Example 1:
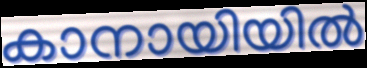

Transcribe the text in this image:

കാനായിയിൽ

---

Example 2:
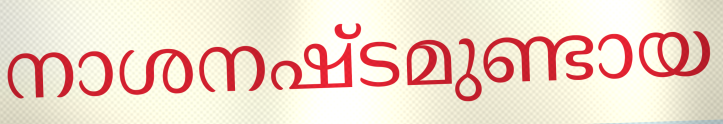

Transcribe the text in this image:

നാശനഷ്ടമുണ്ടായ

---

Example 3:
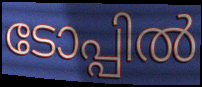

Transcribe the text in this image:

ടോപ്പിൽ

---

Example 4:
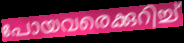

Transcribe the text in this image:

പോയവരെക്കുറിച്ച്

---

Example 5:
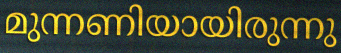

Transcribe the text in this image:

മുന്നണിയായിരുന്നു